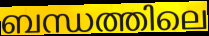
ബന്ധത്തിലെ